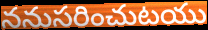
ననుసరించుటయు